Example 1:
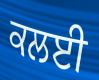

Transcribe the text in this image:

ਕਲਈ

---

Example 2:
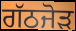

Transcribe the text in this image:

ਗੱਠਜੋੜ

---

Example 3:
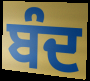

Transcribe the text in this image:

ਬੰਦ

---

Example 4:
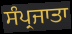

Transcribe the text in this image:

ਸੰਪ੍ਰਜਾਤਾ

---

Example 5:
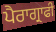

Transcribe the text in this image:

ਪੈਰਾਗ੍ਰਾਫੀ